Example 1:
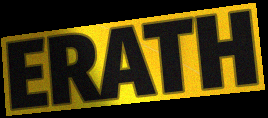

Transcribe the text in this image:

ERATH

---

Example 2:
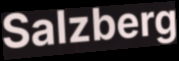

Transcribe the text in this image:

Salzberg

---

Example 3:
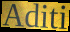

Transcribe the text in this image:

Aditi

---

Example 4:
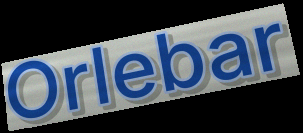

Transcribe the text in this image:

Orlebar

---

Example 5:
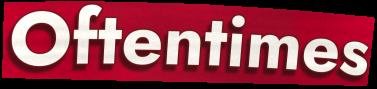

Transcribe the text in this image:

Oftentimes